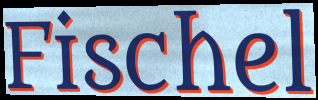
Fischel